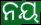
ନୟ